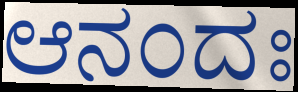
ಆನಂದಃ